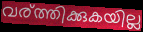
വര്ത്തിക്കുകയില്ല